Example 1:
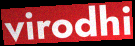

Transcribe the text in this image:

virodhi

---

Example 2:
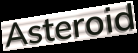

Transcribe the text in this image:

Asteroid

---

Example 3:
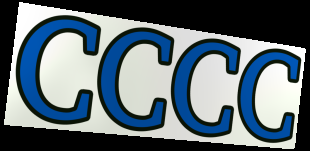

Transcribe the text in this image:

CCCC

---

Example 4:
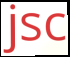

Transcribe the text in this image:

jsc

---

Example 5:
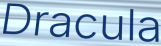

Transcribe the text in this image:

Dracula